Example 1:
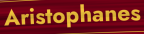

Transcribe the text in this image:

Aristophanes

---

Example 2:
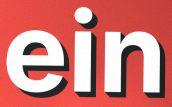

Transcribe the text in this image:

ein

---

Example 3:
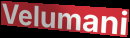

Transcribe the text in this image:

Velumani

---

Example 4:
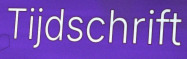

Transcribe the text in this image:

Tijdschrift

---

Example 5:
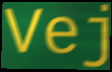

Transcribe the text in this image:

Vej